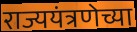
राज्ययंत्रणेच्या